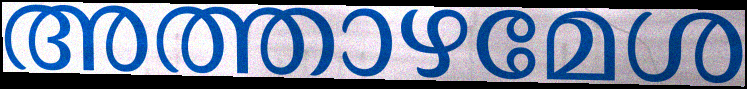
അത്താഴമേശ